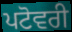
ਪਟੋਵਰੀ